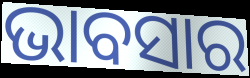
ଭାବସାର